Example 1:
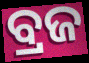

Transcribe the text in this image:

ବ୍ରଜ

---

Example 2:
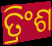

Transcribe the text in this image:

ତ୍ରିଂଶ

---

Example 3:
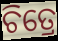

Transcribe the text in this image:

ଚିତ୍ରେ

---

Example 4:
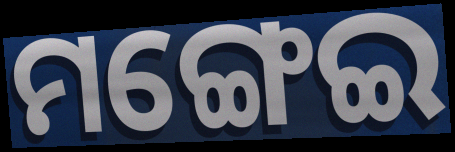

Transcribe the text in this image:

ମଙ୍ଗେଇ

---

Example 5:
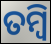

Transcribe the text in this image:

ତମ୍ବି